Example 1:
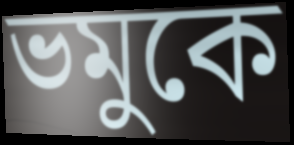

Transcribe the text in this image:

ভমুকে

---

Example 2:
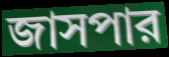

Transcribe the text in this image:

জাসপার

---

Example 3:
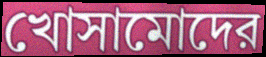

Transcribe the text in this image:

খোসামোদের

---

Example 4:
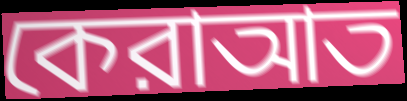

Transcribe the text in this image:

কেরাআত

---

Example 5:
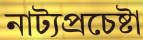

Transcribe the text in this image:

নাট্যপ্রচেষ্টা